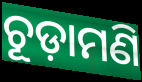
ଚୂଡ଼ାମଣି